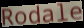
Rodale